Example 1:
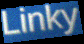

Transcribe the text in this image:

Linky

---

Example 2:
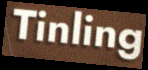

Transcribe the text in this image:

Tinling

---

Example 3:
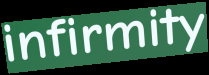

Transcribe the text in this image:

infirmity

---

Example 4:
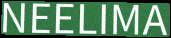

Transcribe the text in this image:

NEELIMA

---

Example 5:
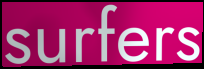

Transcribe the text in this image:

surfers